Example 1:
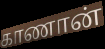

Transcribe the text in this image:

காணான்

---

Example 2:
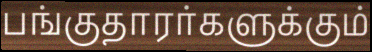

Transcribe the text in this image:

பங்குதாரர்களுக்கும்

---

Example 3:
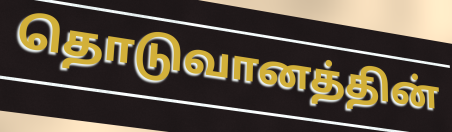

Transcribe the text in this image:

தொடுவானத்தின்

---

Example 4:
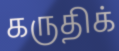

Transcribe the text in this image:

கருதிக்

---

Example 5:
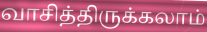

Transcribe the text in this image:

வாசித்திருக்கலாம்